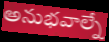
అనుభవాల్నే